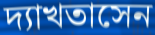
দ্যাখতাসেন